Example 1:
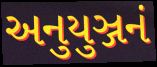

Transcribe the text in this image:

અનુયુઞ્જનં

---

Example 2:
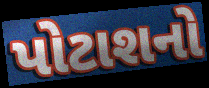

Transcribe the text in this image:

પોટાશનો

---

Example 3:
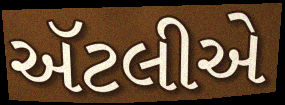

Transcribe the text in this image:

ઍટલીએ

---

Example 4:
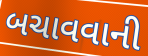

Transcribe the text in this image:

બચાવવાની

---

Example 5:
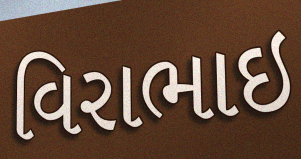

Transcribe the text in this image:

વિરાભાઇ